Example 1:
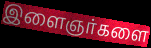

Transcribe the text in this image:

இளைஞர்களை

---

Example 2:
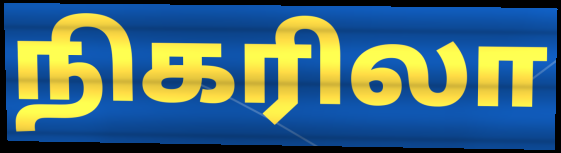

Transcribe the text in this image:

நிகரிலா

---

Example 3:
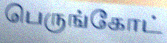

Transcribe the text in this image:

பெருங்கோட்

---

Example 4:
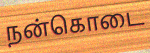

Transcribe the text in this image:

நன்கொடை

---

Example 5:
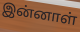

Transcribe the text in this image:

இன்னாள்